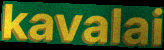
kavalai